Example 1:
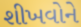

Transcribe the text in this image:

શીખવોને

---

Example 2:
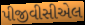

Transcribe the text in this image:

પીજીવીસીએલ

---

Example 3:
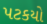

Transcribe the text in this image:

પટકયો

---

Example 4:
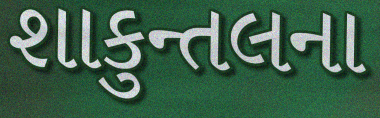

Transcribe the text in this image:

શાકુન્તલના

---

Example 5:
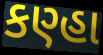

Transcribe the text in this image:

કણ્હા